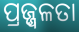
ପ୍ରଜ୍ଜ୍ୱଳତା